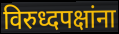
विरुध्दपक्षांना